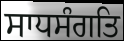
ਸਾਧਸੰਗਤਿ